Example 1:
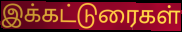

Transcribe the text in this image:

இக்கட்டுரைகள்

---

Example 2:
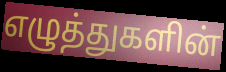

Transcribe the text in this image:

எழுத்துகளின்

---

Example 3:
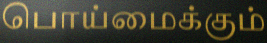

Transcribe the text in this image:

பொய்மைக்கும்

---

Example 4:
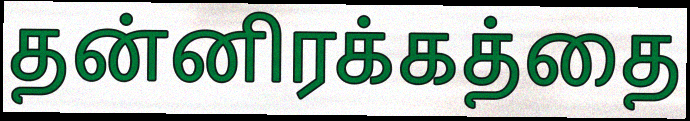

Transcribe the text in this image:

தன்னிரக்கத்தை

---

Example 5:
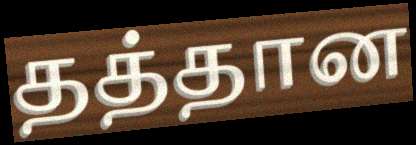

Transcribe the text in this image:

தத்தான